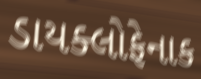
ડાયક્લોફેનાક